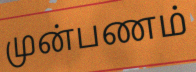
முன்பணம்